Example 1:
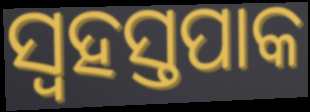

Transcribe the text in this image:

ସ୍ୱହସ୍ତପାକ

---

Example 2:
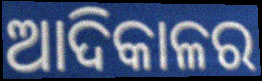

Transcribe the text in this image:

ଆଦିକାଳର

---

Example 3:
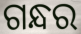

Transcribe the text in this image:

ଗନ୍ଧର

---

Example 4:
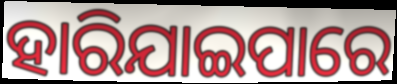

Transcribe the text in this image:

ହାରିଯାଇପାରେ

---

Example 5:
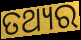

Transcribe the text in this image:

ତଥ୍ୟର